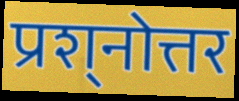
प्रश्नोत्तर